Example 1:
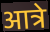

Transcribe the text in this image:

आत्रे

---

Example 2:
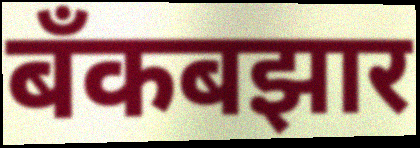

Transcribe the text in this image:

बँकबझार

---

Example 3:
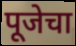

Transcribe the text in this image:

पूजेचा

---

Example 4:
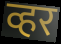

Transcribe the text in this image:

व्हर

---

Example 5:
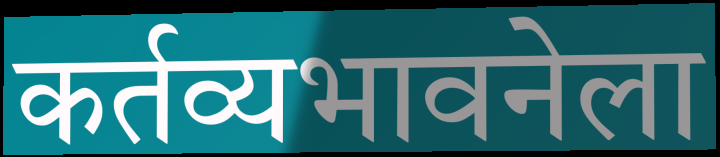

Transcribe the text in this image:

कर्तव्यभावनेला